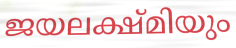
ജയലക്ഷ്മിയും